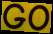
GO